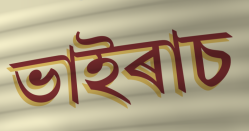
ভাইৰাচ